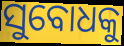
ସୁବୋଧକୁ